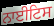
ਨਾਈਟਿਸ